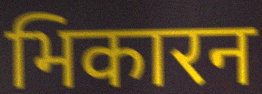
भिकारन